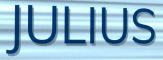
JULIUS